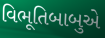
વિભૂતિબાબુએ